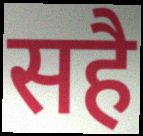
सहै